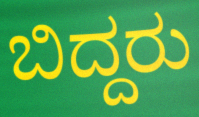
ಬಿದ್ದರು